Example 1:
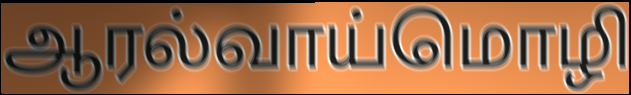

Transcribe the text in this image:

ஆரல்வாய்மொழி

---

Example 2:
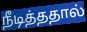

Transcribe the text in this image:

நீடித்ததால்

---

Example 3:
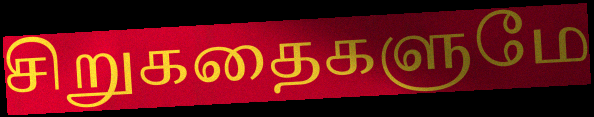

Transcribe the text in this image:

சிறுகதைகளுமே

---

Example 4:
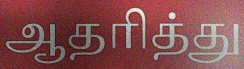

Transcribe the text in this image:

ஆதரித்து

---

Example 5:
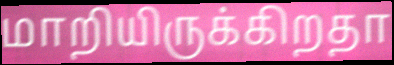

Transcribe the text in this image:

மாறியிருக்கிறதா